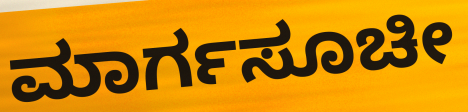
ಮಾರ್ಗಸೂಚೀ